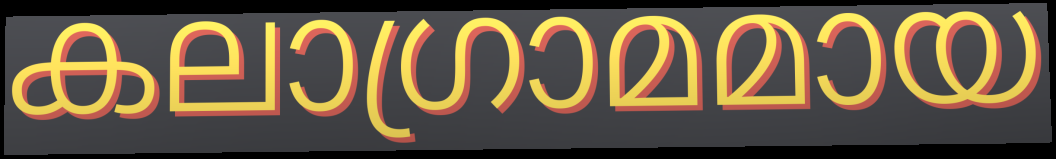
കലാഗ്രാമമായ